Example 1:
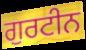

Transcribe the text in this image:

ਗੁਰਟੀਨ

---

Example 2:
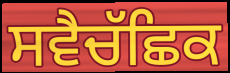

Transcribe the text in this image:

ਸਵੈਚੱਛਿਕ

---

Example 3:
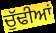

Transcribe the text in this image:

ਚੁੱਢੀਆਂ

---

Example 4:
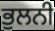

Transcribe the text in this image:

ਭੁਲਨੀ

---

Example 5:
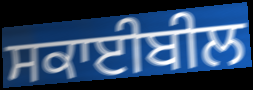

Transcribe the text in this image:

ਸਕਾਈਬੀਲ